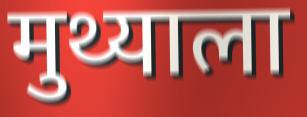
मुथ्याला